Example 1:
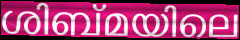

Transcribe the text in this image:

ശിബ്മയിലെ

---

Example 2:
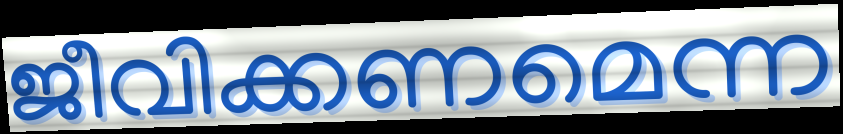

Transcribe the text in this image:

ജീവിക്കണമെന്ന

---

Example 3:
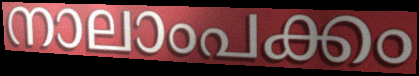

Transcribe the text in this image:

നാലാംപക്കം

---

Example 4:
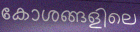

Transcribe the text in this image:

കോശങ്ങളിലെ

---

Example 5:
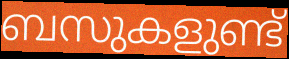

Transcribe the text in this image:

ബസുകളുണ്ട്